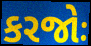
કરજોઃ